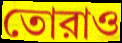
তোরাও